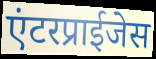
एंटरप्राईजेस